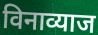
विनाव्याज